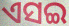
ଏସଇ